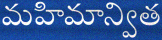
మహిమాన్విత